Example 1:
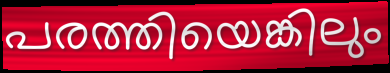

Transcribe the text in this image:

പരത്തിയെങ്കിലും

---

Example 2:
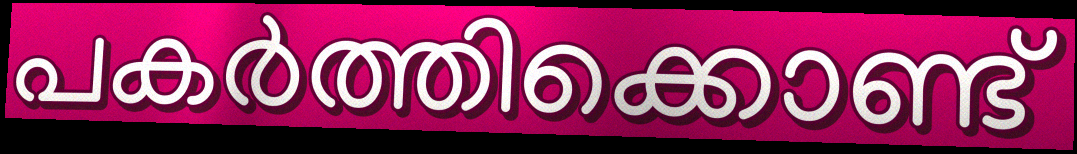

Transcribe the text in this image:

പകർത്തിക്കൊണ്ട്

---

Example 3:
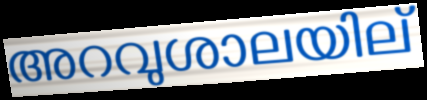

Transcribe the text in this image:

അറവുശാലയില്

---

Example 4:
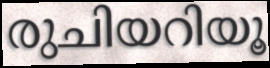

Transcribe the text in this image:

രുചിയറിയൂ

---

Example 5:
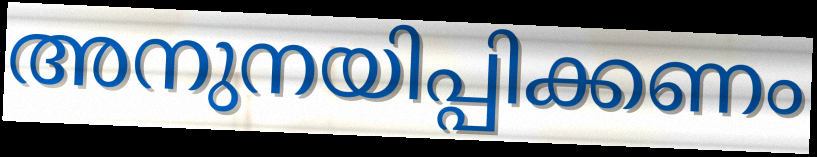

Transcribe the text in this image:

അനുനയിപ്പിക്കണം